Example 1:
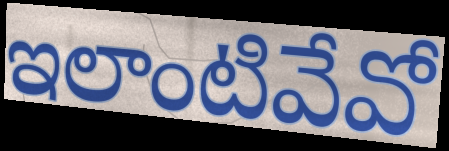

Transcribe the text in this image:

ఇలాంటివేవో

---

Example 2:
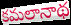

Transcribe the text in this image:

కమలానాథ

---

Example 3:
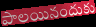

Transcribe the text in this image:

పాలయినందుకు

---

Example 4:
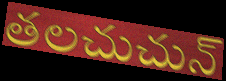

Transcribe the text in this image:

తలచుచున్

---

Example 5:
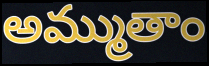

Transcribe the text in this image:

అమ్ముతాం